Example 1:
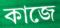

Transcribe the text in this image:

কাজে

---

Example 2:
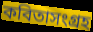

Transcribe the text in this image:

কবিতাসংগ্রহ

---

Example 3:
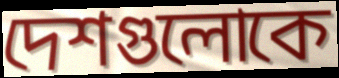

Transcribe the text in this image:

দেশগুলোকে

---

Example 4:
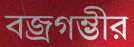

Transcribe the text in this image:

বজ্রগম্ভীর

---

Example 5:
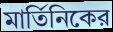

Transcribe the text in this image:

মার্তিনিকের